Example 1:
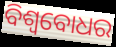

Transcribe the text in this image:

ବିଶ୍ବବୋଧର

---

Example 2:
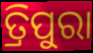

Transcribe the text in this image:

ତ୍ରିପୁରା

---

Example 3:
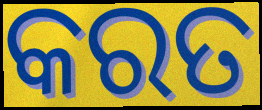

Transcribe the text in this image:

କରତ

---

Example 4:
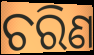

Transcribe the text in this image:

ଚରିଣ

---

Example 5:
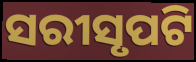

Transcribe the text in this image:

ସରୀସୃପଟି